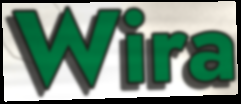
Wira